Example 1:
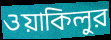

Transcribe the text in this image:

ওয়াকিলুর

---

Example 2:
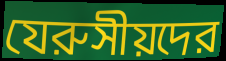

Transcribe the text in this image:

যেরুসীয়দের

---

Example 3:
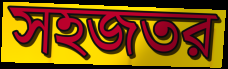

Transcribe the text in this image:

সহজতর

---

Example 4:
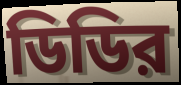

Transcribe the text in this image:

ডিডির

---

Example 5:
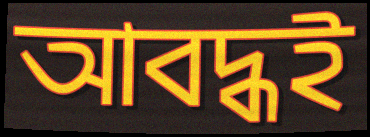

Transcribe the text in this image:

আবদ্ধই